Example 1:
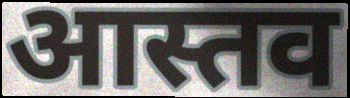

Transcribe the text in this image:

आस्तव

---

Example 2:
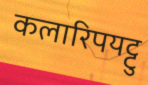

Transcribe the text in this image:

कलारिपयट्टु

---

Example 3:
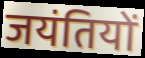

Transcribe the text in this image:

जयंतियों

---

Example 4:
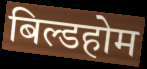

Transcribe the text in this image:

बिल्डहोम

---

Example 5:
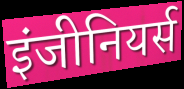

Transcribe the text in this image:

इंजीनियर्स